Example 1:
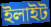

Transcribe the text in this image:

ইলাইট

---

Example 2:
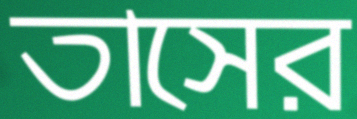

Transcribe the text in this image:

তাসের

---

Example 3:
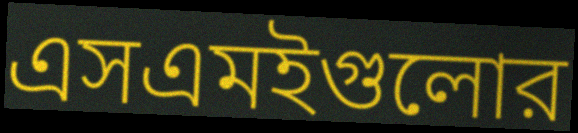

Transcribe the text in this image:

এসএমইগুলোর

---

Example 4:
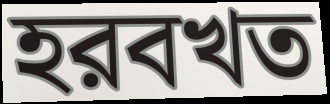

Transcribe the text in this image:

হরবখত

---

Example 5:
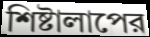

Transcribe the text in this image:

শিষ্টালাপের